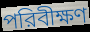
পরিবীক্ষণ